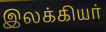
இலக்கியர்